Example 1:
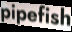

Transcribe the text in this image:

pipefish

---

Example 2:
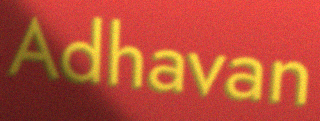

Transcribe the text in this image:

Adhavan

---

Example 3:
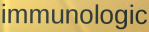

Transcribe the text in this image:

immunologic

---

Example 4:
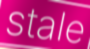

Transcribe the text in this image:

stale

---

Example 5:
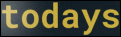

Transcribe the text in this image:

todays